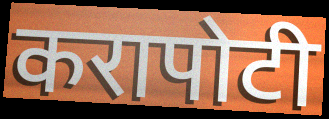
करापोटी